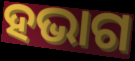
ହଭାଗ